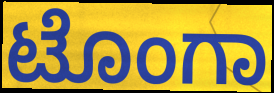
ಟೊಂಗಾ